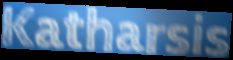
Katharsis